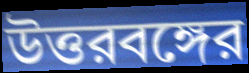
উত্তরবঙ্গের